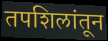
तपशिलांतून